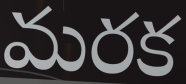
మరక